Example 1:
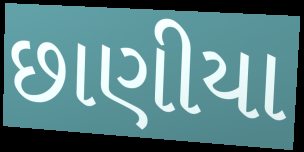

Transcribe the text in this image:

છાણીયા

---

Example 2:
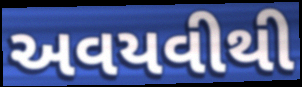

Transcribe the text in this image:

અવયવીથી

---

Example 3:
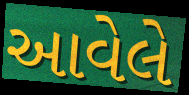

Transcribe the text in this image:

આવેલે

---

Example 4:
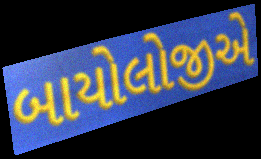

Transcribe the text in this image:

બાયોલોજીએ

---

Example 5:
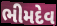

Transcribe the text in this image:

ભીમદેવ